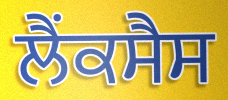
ਲੈਂਕਸੈਸ